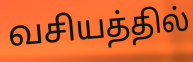
வசியத்தில்